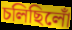
চলিছিলোঁ